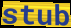
stub